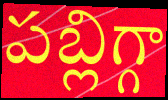
పబ్లిగ్గా